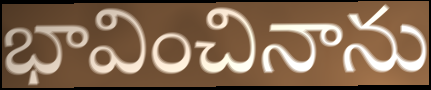
భావించినాను